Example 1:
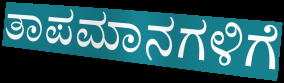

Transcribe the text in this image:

ತಾಪಮಾನಗಳಿಗೆ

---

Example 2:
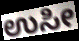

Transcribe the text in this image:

ಉಸೀ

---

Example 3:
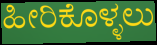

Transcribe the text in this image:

ಹೀರಿಕೊಳ್ಳಲು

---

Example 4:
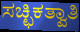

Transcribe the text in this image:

ಸಚ್ಛಿಕತ್ವಾತಿ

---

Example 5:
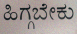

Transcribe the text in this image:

ಹಿಗ್ಗಬೇಕು